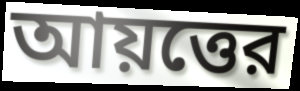
আয়ত্তের